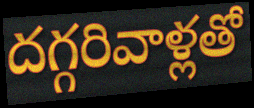
దగ్గరివాళ్లతో